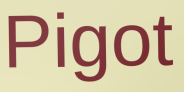
Pigot